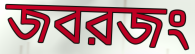
জবরজং